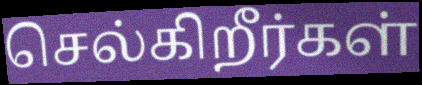
செல்கிறீர்கள்